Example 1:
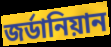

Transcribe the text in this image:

জর্ডানিয়ান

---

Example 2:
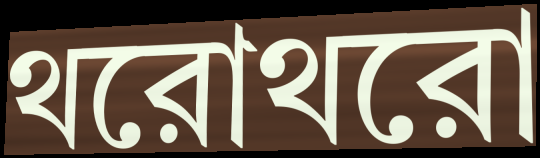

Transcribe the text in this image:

থরোথরো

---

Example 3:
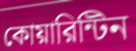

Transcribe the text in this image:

কোয়ারিন্টিন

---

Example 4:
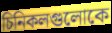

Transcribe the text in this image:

চিনিকলগুলোকে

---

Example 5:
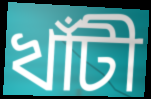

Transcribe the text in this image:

খাঁটী